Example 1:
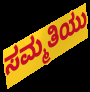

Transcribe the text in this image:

ಸಮ್ಮತಿಯು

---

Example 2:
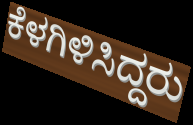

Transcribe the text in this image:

ಕೆಳಗಿಳಿಸಿದ್ದರು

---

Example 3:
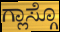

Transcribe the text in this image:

ಗ್ಲಾಸ್ಗೊ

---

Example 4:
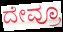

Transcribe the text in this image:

ದೇವ್ರೂ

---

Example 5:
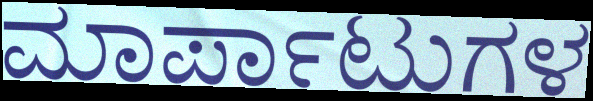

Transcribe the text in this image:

ಮಾರ್ಪಾಟುಗಳ